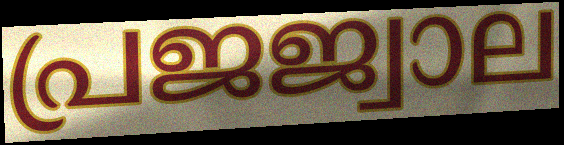
പ്രജജ്വാല